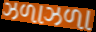
ઝળાઝળા